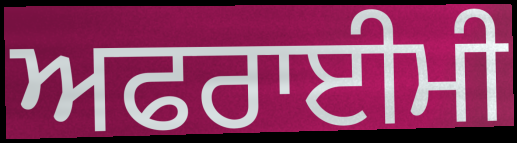
ਅਫਰਾਈਮੀ